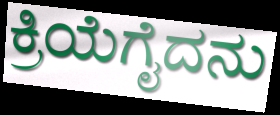
ಕ್ರಿಯೆಗೈದನು